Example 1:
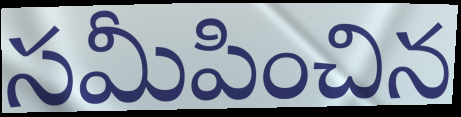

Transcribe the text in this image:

సమీపించిన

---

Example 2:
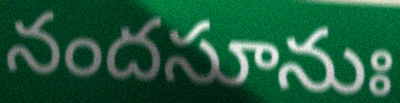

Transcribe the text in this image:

నందసూనుః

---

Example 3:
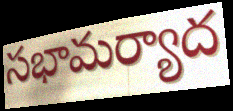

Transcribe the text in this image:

సభామర్యాద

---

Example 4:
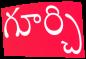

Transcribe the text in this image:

గూర్చి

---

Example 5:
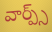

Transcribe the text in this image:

వార్ప్స్